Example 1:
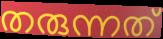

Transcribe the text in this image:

തരുന്നത്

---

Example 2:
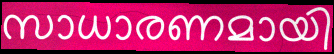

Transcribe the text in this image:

സാധാരണമായി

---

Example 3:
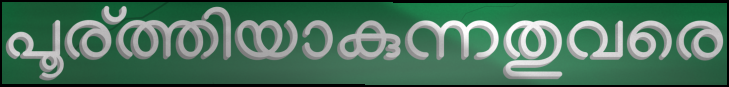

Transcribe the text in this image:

പൂര്ത്തിയാകുന്നതുവരെ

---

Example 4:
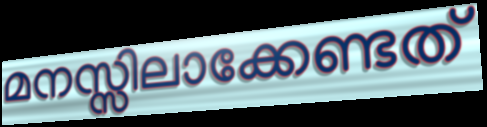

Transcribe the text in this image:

മനസ്സിലാക്കേണ്ടത്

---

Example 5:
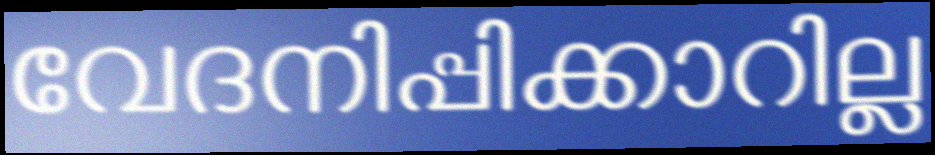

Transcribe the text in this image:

വേദനിപ്പിക്കാറില്ല